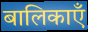
बालिकाएँ